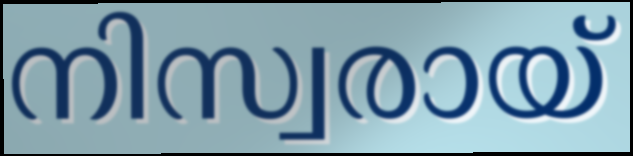
നിസ്വരായ്